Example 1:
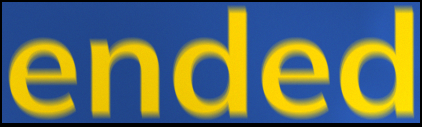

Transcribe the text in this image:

ended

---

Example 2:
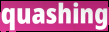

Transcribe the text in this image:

quashing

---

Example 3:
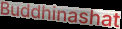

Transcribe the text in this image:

Buddhinashat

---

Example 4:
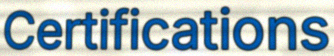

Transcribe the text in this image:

Certifications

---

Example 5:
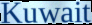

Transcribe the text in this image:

Kuwait